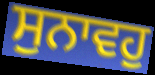
ਸੁਨਾਵਹੁ